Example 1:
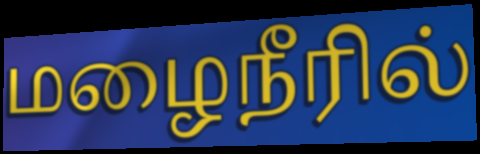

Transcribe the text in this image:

மழைநீரில்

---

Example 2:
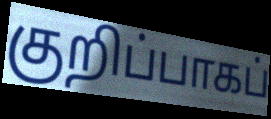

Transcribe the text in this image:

குறிப்பாகப்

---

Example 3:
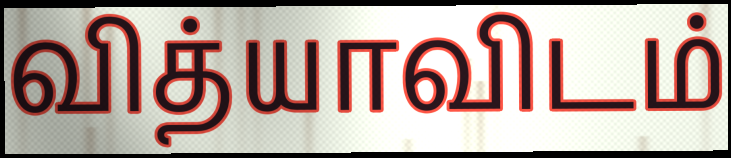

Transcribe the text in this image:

வித்யாவிடம்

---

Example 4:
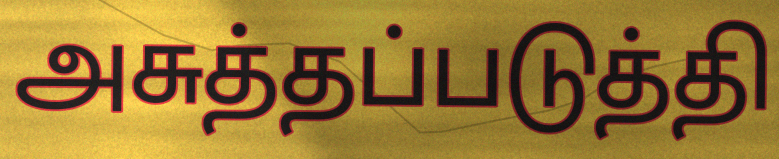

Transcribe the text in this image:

அசுத்தப்படுத்தி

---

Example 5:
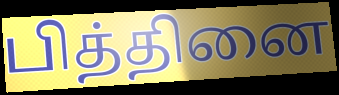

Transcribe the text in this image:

பித்தினை